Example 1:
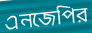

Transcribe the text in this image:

এনজেপির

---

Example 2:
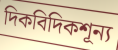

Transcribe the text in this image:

দিকবিদিকশূন্য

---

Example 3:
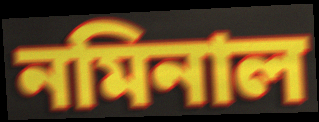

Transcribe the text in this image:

নমিনাল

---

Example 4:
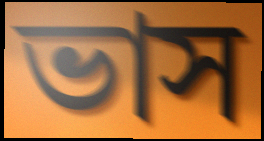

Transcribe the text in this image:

ভাস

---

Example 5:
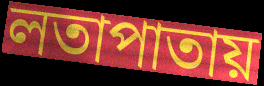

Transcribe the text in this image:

লতাপাতায়